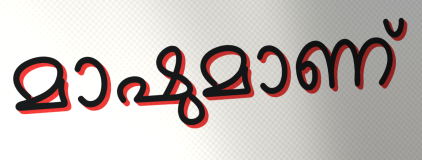
മാഷുമാണ്